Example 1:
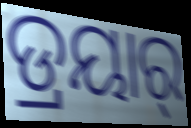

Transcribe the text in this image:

ଡ୍ରୟାର୍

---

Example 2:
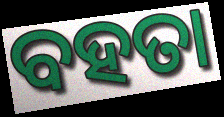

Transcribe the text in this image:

ବହତା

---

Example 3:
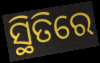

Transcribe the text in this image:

ସ୍ଥିତିରେ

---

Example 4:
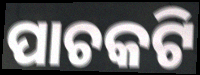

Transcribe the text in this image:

ପାଚକଟି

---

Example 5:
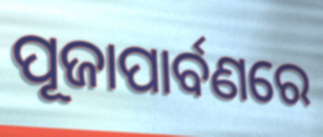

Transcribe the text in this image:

ପୂଜାପାର୍ବଣରେ